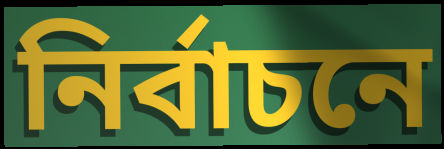
নিৰ্বাচনে